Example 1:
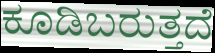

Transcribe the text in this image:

ಕೂಡಿಬರುತ್ತದೆ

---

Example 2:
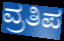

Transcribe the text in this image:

ವ್ರತಿಪ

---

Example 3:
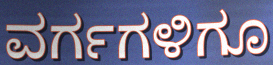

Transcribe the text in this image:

ವರ್ಗಗಳಿಗೂ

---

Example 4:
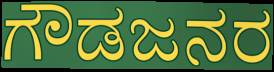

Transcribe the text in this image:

ಗೌಡಜನರ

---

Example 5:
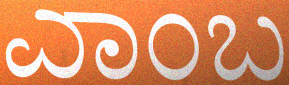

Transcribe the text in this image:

ಎಾಂಬ